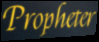
Propheter